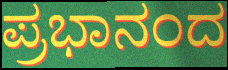
ಪ್ರಭಾನಂದ